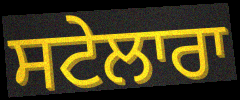
ਸਟੇਲਾਰਾ